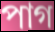
পাগ